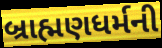
બ્રાહ્મણધર્મની